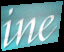
ine